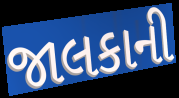
જાલકાની